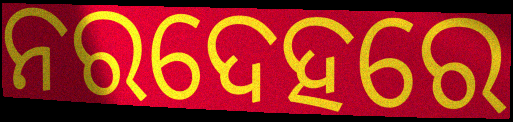
ନରଦେହରେ